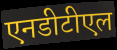
एनडीटीएल